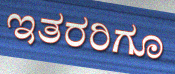
ಇತರರಿಗೂ